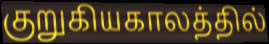
குறுகியகாலத்தில்